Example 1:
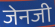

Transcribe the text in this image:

जेनजी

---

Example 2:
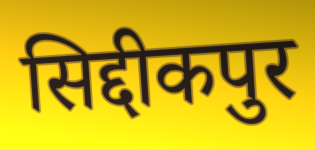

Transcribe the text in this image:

सिद्दीकपुर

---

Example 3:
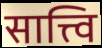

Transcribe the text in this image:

सात्त्वि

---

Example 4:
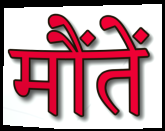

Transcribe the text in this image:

मौंतें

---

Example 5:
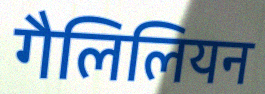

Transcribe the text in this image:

गैलिलियन